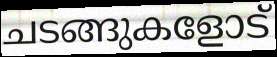
ചടങ്ങുകളോട്